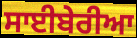
ਸਾਈਬੇਰੀਆ